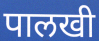
पालखी